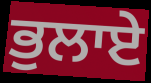
ਭੁਲਾਏ